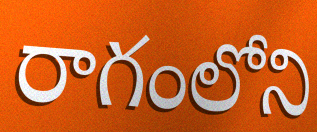
రాగంలోని